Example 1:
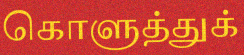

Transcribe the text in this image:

கொளுத்துக்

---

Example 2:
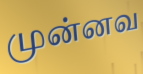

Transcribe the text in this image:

முன்னவ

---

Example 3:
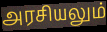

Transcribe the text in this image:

அரசியலும்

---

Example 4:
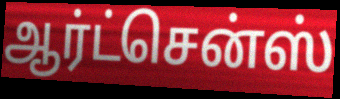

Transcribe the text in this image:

ஆர்ட்சென்ஸ்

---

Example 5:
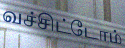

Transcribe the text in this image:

வச்சிட்டோம்